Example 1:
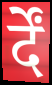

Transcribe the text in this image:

र्दें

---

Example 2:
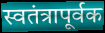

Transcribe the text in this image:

स्वतंत्रापूर्वक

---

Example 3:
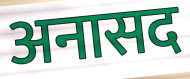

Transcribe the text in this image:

अनासद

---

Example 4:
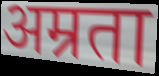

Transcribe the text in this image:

अम्रता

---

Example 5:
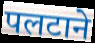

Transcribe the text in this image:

पलटाने